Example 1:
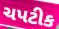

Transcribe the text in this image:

ચપટીક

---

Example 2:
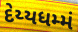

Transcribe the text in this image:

દેય્યધમ્મં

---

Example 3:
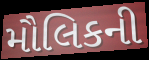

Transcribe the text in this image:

મૌલિકની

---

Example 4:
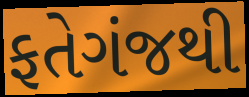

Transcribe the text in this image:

ફતેગંજથી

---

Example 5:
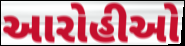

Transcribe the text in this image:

આરોહીઓ